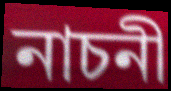
নাচনী